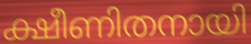
ക്ഷീണിതനായി